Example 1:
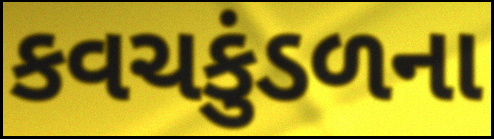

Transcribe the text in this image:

કવચકુંડળના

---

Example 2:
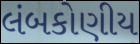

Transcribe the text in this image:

લંબકોણીય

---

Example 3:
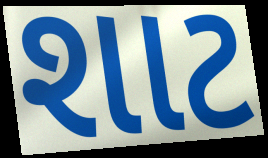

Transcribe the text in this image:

શાટ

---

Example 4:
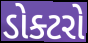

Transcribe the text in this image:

ડોક્ટરો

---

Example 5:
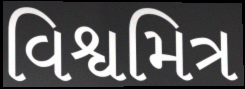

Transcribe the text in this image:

વિશ્વમિત્ર